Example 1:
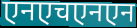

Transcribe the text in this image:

एनएचएनएन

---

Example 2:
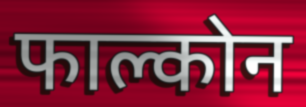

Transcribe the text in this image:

फाल्कोन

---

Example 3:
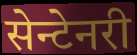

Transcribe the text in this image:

सेन्टेनरी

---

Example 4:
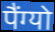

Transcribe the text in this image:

पैंग्यो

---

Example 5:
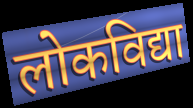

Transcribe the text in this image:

लोकविद्या